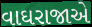
વાઘરાજાએ